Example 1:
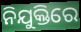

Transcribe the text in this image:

ନିଯୁକ୍ତିରେ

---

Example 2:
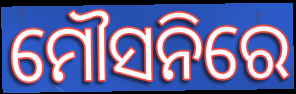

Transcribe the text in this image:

ମୌସନିରେ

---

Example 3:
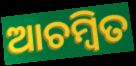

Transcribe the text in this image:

ଆଚମ୍ବିତ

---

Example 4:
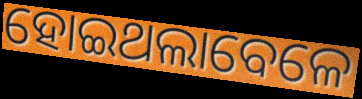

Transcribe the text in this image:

ହୋଇଥଲାବେଳେ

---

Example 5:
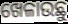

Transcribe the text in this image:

ଖେଳାଉଛୁ